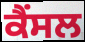
ਕੈਂਸਲ